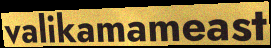
valikamameast